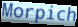
Morpich